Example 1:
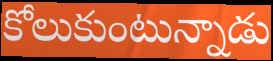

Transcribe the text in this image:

కోలుకుంటున్నాడు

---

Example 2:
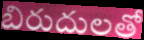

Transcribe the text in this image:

బిరుదులతో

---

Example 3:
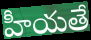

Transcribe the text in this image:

హీయతే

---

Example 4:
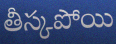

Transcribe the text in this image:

తీస్కపోయి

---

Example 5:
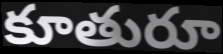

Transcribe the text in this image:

కూతురూ